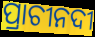
ପ୍ରାଚୀନଦୀ